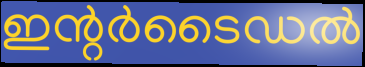
ഇന്റർടൈഡൽ